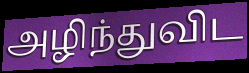
அழிந்துவிட